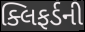
ક્લિફર્ડની